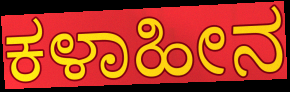
ಕಳಾಹೀನ